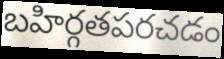
బహిర్గతపరచడం